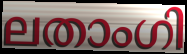
ലതാംഗി